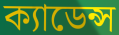
ক্যাডেন্স